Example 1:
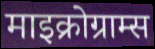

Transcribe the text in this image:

माइक्रोग्राम्स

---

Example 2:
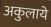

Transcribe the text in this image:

अकुलाये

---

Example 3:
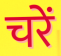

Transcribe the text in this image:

चरें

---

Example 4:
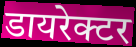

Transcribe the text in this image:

डायरेक्‍टर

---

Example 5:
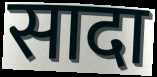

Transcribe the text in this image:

सादा